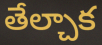
తేల్చాక